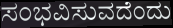
ಸಂಭವಿಸುವದೆಂದು